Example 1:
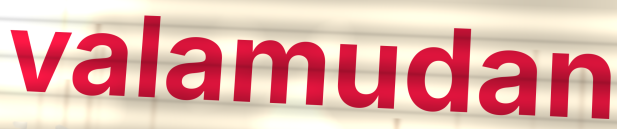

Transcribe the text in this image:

valamudan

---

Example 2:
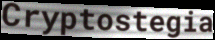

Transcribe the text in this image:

Cryptostegia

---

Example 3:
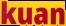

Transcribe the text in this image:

kuan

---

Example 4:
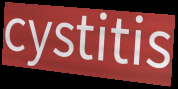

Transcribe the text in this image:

cystitis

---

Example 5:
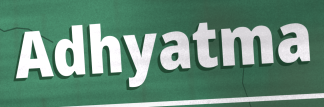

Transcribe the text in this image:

Adhyatma